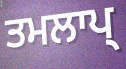
ਤਮਲਾਪ੍